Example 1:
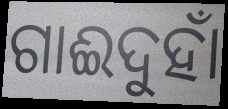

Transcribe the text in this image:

ଗାଈଦୁହାଁ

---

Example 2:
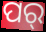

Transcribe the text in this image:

ପର୍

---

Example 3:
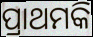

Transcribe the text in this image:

ପ୍ରାଥମକି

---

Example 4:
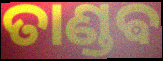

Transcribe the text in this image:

ତାଣ୍ଡଵ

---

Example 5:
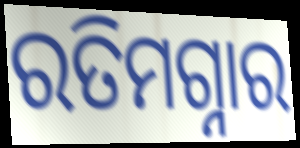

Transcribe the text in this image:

ରତିମଗ୍ନାର